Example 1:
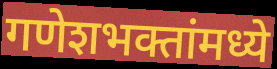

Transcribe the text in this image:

गणेशभक्तांमध्ये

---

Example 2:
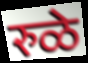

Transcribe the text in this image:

रुळे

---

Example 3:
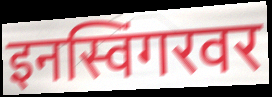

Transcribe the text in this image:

इनस्विंगरवर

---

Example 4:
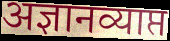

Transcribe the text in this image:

अज्ञानव्याप्त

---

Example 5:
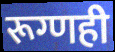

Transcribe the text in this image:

रूग्णही